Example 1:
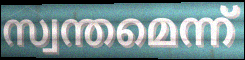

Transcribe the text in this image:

സ്വന്തമെന്ന്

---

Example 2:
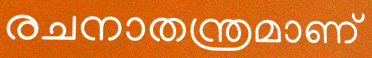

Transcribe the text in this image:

രചനാതന്ത്രമാണ്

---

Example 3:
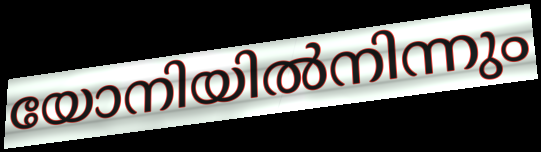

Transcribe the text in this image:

യോനിയിൽനിന്നും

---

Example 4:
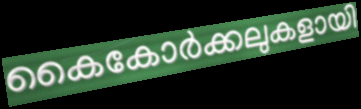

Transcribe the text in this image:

കൈകോർക്കലുകളായി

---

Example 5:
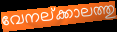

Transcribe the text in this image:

വേനല്ക്കാലത്തു